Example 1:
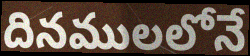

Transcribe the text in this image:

దినములలోనే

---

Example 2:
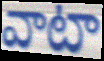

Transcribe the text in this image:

వాటా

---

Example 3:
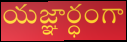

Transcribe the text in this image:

యజ్ఞార్ధంగా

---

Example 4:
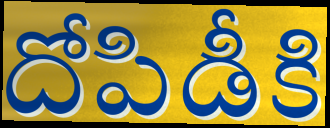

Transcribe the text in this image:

దోపిడీకి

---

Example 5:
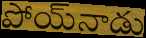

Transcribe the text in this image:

పోయ్‌నాడు